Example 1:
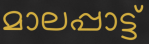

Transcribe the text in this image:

മാലപ്പാട്ട്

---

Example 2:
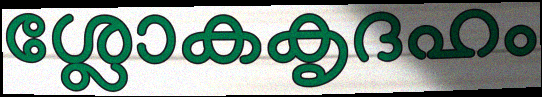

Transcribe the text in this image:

ശ്ലോകകൃദഹം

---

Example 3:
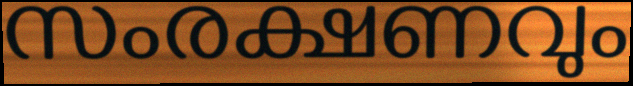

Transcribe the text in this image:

സംരക്ഷണവും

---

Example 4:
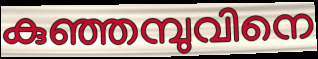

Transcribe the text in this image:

കുഞ്ഞമ്പുവിനെ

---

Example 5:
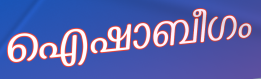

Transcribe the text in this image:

ഐഷാബീഗം